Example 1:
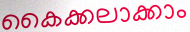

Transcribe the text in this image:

കൈക്കലാക്കാം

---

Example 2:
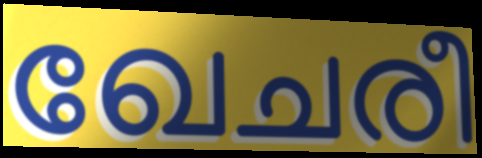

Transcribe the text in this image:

ഖേചരീ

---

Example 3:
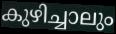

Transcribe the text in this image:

കുഴിച്ചാലും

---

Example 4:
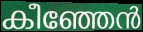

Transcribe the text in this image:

കീഞ്ഞേൻ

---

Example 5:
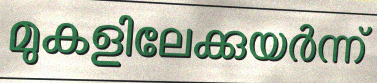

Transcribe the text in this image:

മുകളിലേക്കുയർന്ന്